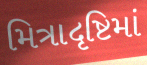
મિત્રાદૃષ્ટિમાં